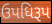
ઉપધિરૂપ